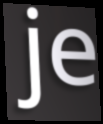
je